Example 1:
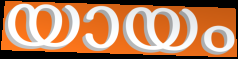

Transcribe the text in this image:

യായം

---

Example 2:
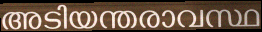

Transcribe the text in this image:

അടിയന്തരാവസ്ഥ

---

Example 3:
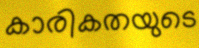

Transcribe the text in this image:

കാരികതയുടെ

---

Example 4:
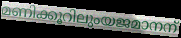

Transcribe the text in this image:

മണിക്കൂറിലുംയജമാനന്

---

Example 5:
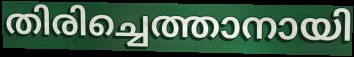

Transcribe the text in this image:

തിരിച്ചെത്താനായി